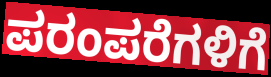
ಪರಂಪರೆಗಳಿಗೆ